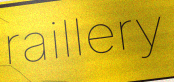
raillery